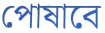
পোষাবে